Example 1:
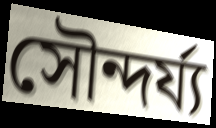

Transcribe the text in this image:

সৌন্দৰ্য্য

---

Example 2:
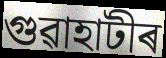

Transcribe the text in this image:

গুৱাহাটীৰ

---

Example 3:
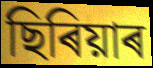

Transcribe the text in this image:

ছিৰিয়াৰ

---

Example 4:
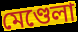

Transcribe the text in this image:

মেণ্ডেলা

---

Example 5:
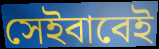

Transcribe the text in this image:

সেইবাবেই